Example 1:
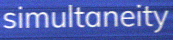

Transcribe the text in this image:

simultaneity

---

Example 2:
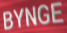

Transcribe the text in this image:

BYNGE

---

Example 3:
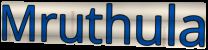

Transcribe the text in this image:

Mruthula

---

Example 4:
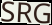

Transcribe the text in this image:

SRG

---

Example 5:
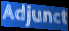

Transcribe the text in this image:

Adjunct